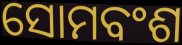
ସୋମବଂଶ